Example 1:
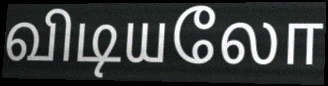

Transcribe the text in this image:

விடியலோ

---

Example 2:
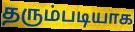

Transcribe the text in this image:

தரும்படியாக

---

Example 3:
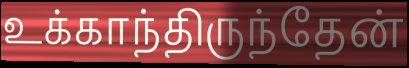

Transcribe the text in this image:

உக்காந்திருந்தேன்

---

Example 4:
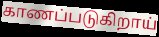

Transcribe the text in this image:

காணப்படுகிறாய்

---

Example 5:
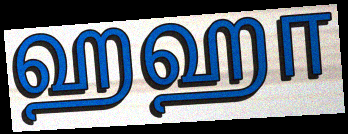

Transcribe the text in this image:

ஹஹா